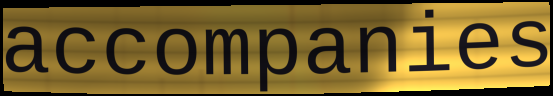
accompanies